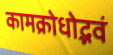
कामक्रोधोद्भवं